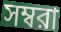
সম্বরা